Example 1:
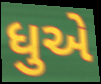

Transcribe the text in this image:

ધુએ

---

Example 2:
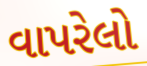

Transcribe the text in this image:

વાપરેલો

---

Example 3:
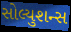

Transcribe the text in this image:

સોલ્યુશન્સ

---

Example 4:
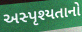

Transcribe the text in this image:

અસ્પૃશ્યતાનો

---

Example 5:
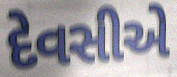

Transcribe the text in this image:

દેવસીએ